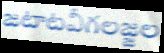
జటాటవీగలజ్జల